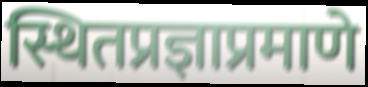
स्थितप्रज्ञाप्रमाणे